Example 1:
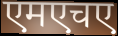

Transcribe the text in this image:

एमएचए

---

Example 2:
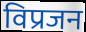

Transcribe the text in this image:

विप्रजन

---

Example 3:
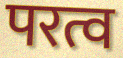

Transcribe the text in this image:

परत्व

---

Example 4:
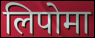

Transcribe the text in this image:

लिपोमा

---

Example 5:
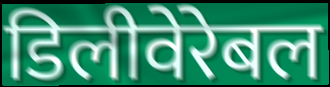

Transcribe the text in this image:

डिलीवेरेबल